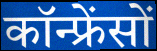
कॉन्फ्रेंसों